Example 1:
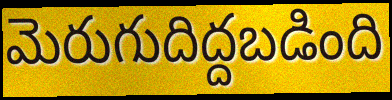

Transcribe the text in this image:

మెరుగుదిద్దబడింది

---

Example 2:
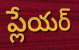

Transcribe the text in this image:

ప్లేయర్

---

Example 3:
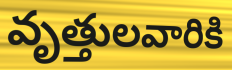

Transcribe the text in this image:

వృత్తులవారికి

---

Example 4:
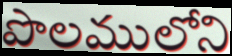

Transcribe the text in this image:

పొలములోని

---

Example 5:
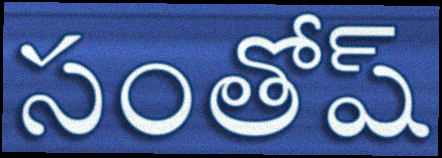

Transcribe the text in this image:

సంతోష్